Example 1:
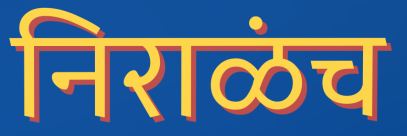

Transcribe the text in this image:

निराळंच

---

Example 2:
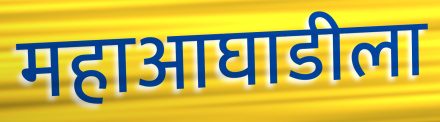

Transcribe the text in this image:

महाआघाडीला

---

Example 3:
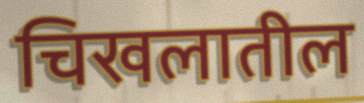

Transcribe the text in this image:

चिखलातील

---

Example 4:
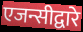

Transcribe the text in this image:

एजन्सीद्वारे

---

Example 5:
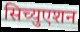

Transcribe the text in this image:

सिच्युएशन